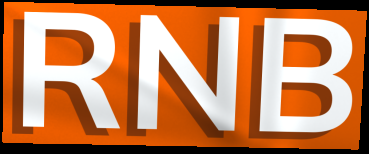
RNB